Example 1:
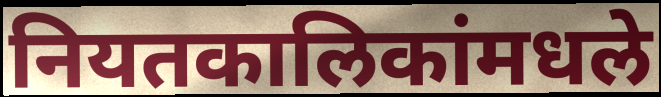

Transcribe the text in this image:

नियतकालिकांमधले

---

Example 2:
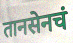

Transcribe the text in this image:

तानसेनचं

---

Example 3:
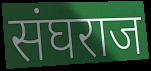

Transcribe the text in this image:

संघराज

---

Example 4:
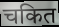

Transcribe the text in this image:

चकित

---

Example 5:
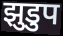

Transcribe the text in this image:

झुडुप